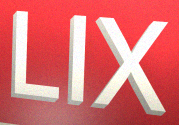
LIX